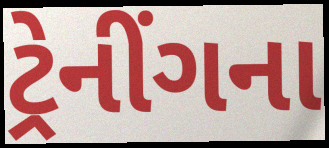
ટ્રેનીંગના